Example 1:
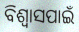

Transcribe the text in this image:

ବିଶ୍ୱାସପାଇଁ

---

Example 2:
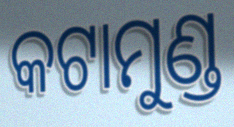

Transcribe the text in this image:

କଟାମୁଣ୍ଡ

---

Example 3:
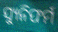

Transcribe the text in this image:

ସ୍ୟୁନିଫର୍ମ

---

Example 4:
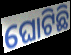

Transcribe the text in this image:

ଘୋଟିଛି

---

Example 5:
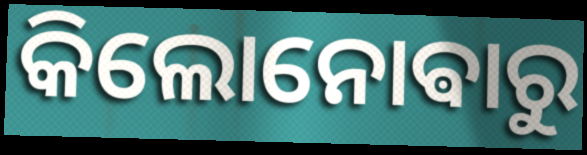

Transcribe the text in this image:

କିଲୋନୋଵାରୁ